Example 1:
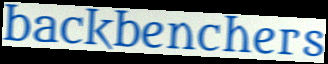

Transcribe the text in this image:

backbenchers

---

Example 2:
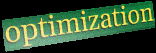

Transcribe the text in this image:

optimization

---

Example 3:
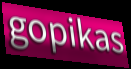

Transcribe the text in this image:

gopikas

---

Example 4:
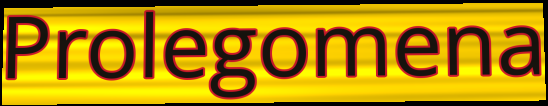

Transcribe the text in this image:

Prolegomena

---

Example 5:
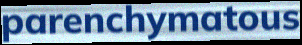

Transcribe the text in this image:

parenchymatous